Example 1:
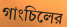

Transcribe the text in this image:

গাংচিলের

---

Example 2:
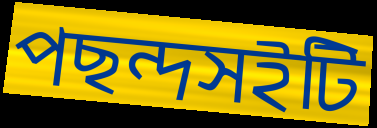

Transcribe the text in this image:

পছন্দসইটি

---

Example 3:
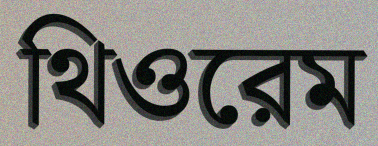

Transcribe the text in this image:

থিওরেম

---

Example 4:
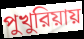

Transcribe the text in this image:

পুখুরিয়ায়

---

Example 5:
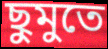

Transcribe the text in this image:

ছুমুতে